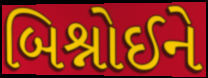
બિશ્નોઈને